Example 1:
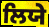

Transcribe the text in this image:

ਲਿਯੇ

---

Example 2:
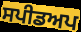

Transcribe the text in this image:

ਸਪੀਡਅਪ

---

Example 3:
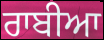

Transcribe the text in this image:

ਰਾਬੀਆ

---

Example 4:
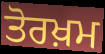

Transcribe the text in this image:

ਤੋਰਖ਼ਮ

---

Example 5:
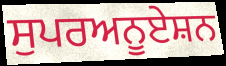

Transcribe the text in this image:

ਸੁਪਰਅਨੂਏਸ਼ਨ